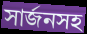
সার্জনসহ